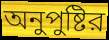
অনুপুষ্টির